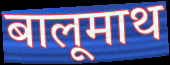
बालूमाथ